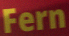
Fern